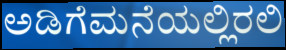
ಅಡಿಗೆಮನೆಯಲ್ಲಿರಲಿ